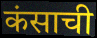
कंसाची